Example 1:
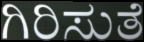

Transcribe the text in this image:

ಗಿರಿಸುತೆ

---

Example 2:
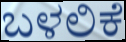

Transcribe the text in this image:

ಬಳಲಿಕೆ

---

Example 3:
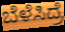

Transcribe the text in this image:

ಬೆಳೆಸಿದ್ರೆ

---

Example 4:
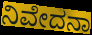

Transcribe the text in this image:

ನಿವೇದನಾ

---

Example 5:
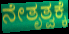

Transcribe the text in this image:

ನೇತೃತ್ವಕ್ಕೆ